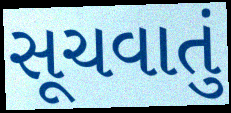
સૂચવાતું